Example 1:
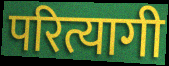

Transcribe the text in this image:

परित्यागी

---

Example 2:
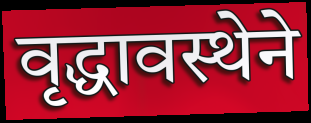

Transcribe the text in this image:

वृद्धावस्थेने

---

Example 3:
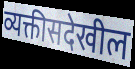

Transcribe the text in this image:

व्यक्तीसदेखील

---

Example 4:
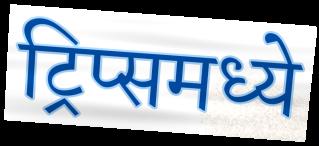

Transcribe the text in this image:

ट्रिप्समध्ये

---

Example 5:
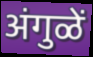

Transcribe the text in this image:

अंगुळें